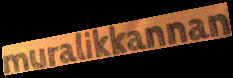
muralikkannan